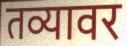
तव्यावर